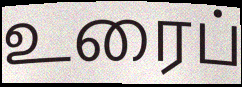
உரைப்